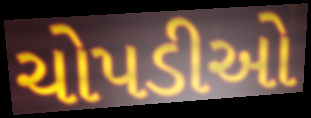
ચોપડીઓ